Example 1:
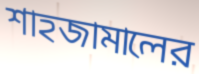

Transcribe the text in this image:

শাহজামালের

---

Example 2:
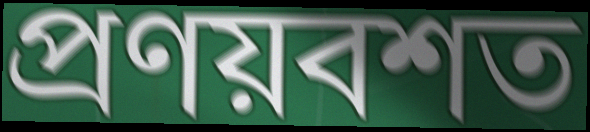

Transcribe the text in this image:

প্রণয়বশত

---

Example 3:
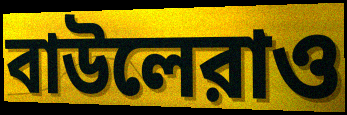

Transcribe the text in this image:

বাউলেরাও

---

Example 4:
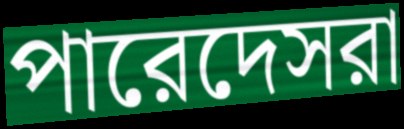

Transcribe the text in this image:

পারেদেসরা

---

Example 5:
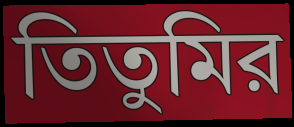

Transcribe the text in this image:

তিতুমির